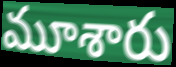
మూశారు